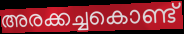
അരക്കച്ചകൊണ്ട്